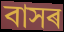
বাসৰ